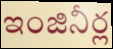
ఇంజినీర్ల